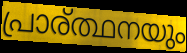
പ്രാര്ത്ഥനയും